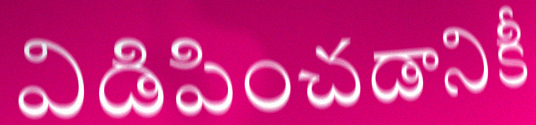
విడిపించడానికీ